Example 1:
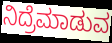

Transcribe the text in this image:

ನಿದ್ರೆಮಾಡುವ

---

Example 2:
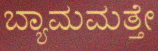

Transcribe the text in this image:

ಬ್ಯಾಮಮತ್ತೇ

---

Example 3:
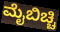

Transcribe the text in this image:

ಮೈಬಿಚ್ಚಿ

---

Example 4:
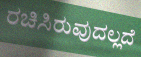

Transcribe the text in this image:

ರಚಿಸಿರುವುದಲ್ಲದೆ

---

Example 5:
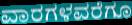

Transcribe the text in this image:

ವಾರಗಳವರೆಗೂ